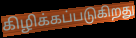
கிழிக்கப்படுகிறது